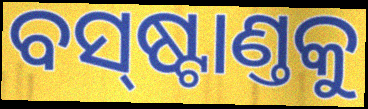
ବସ୍‌ଷ୍ଟାଣ୍ତକୁ